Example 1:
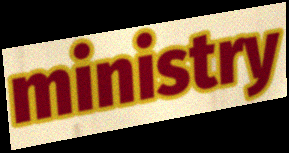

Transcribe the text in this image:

ministry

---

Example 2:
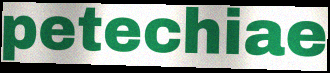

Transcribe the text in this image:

petechiae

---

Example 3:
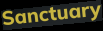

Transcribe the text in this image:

Sanctuary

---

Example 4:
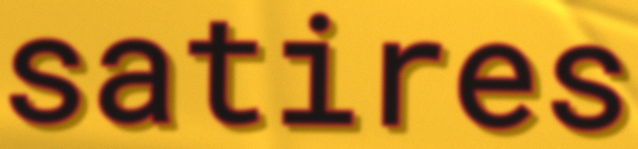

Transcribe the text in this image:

satires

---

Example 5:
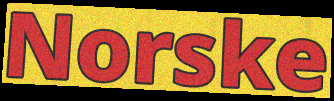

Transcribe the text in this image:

Norske